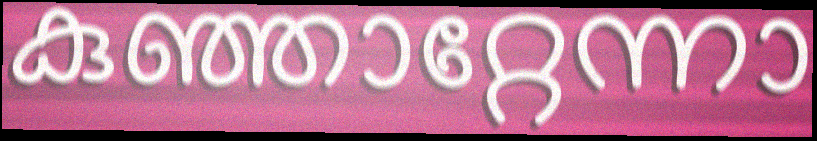
കുഞ്ഞാറ്റേന്നാ